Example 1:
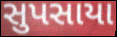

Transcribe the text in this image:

સુપસાયા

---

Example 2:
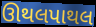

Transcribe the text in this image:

ઊથલપાથલ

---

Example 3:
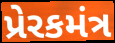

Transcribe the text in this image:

પ્રેરકમંત્ર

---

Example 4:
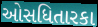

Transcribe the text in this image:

ઓસધિતારકા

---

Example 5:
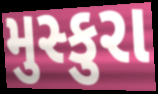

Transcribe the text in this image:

મુસ્કુરા